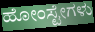
ಹೋಂಸ್ಟೇಗಳು